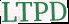
LTPD